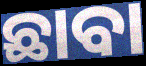
ଛାବା